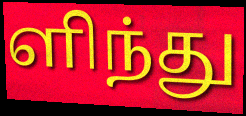
ளிந்து